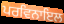
ਪਰਵਿਨਾਇਲ